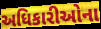
અધિકારીઓના